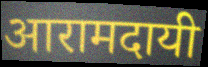
आरामदायी